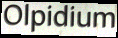
Olpidium